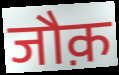
जौक़